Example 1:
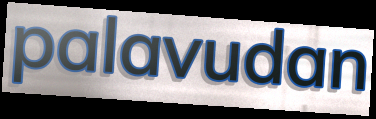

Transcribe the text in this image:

palavudan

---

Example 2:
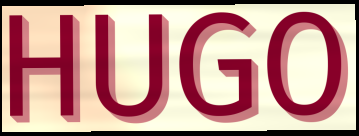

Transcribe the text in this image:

HUGO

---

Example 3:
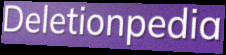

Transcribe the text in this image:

Deletionpedia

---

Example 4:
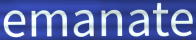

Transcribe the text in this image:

emanate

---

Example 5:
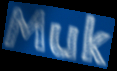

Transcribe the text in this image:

Muk